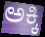
ಅಕ್ಕಿ